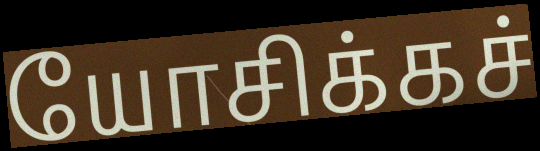
யோசிக்கச்